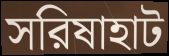
সরিষাহাট